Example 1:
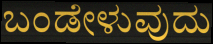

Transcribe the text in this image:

ಬಂಡೇಳುವುದು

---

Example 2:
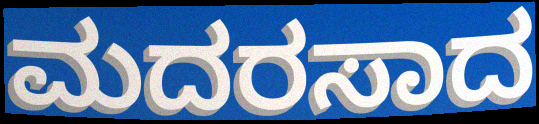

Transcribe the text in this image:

ಮದರಸಾದ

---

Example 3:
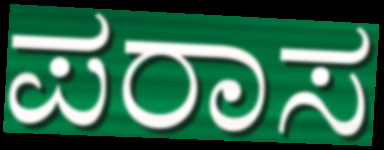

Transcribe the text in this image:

ಪರಾಸ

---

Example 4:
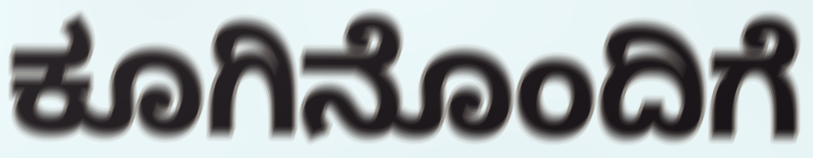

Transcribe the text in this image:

ಕೂಗಿನೊಂದಿಗೆ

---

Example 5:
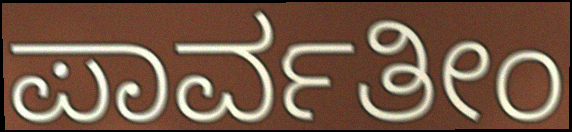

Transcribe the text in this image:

ಪಾರ್ವತೀಂ